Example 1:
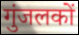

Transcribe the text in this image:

गुंजलकों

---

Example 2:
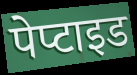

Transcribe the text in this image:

पेप्टाइड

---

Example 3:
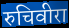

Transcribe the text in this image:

रुचिवीरा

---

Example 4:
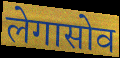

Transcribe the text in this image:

लेगासोव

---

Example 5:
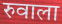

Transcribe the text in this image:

रुवाला